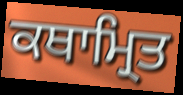
ਕਥਾਮ੍ਰਿਤ